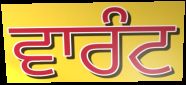
ਵਾਰੰਟ